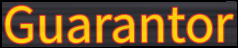
Guarantor